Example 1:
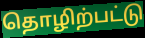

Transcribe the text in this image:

தொழிற்பட்டு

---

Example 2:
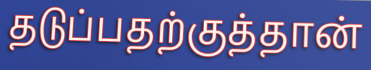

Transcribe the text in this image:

தடுப்பதற்குத்தான்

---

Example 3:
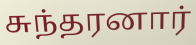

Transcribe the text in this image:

சுந்தரனார்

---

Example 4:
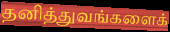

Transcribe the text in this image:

தனித்துவங்களைக்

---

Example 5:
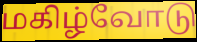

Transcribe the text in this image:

மகிழ்வோடு